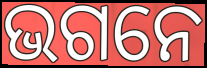
ଭଗନେ